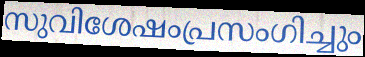
സുവിശേഷംപ്രസംഗിച്ചും